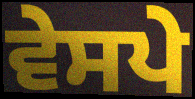
ਵੇਸਪੇ